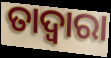
ତାଦ୍ବାରା